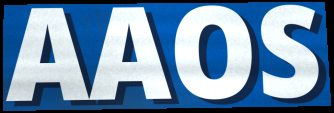
AAOS